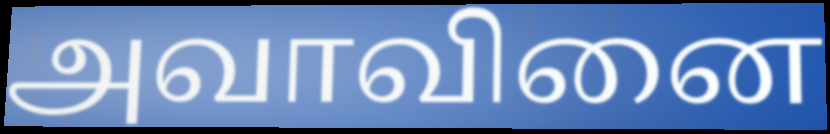
அவாவினை